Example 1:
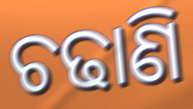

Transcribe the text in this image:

ଚଢାଣି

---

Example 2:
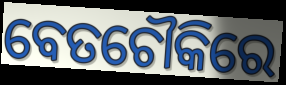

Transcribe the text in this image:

ବେତଚୌକିରେ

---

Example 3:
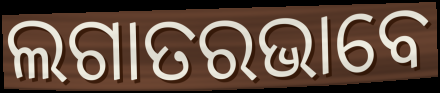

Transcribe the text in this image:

ଲଗାତରଭାବେ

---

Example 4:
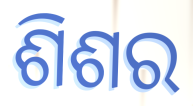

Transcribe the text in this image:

ଶିଶର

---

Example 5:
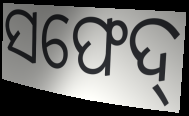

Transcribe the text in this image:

ସଫେଦ୍